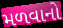
મળવાનો